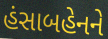
હંસાબહેનને